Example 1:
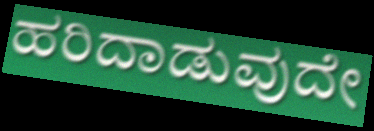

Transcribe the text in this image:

ಹರಿದಾಡುವುದೇ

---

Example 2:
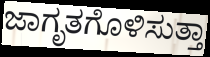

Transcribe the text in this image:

ಜಾಗೃತಗೊಳಿಸುತ್ತಾ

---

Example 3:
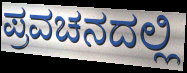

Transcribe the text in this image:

ಪ್ರವಚನದಲ್ಲಿ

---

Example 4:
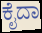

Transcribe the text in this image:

ಕೈದಾ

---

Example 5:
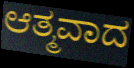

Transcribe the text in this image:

ಆತ್ಮವಾದ